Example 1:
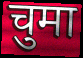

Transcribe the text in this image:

चुमा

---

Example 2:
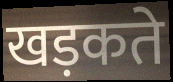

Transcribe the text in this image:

खड़कते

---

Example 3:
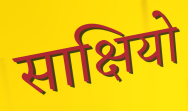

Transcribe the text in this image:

साक्षियो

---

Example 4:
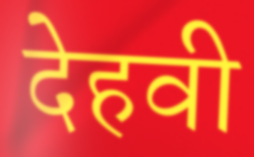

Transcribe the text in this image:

देहवी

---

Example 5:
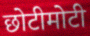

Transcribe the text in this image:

छोटीमोटी